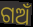
ଗଅଁ